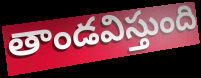
తాండవిస్తుంది